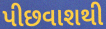
પીછવાશથી